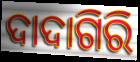
ଦାଦାଗିରି